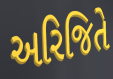
અરિજિતે